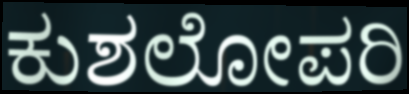
ಕುಶಲೋಪರಿ